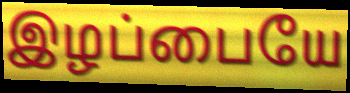
இழப்பையே